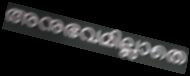
അനുഭവമില്ലാതെ